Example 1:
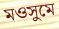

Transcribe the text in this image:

মওসুমে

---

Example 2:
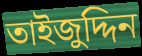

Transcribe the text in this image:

তাইজুদ্দিন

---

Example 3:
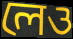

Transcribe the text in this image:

লেও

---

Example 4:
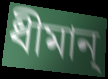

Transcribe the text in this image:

ধীমান্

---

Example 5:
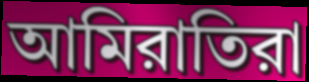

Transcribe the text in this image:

আমিরাতিরা